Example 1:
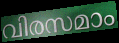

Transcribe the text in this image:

വിരസമാം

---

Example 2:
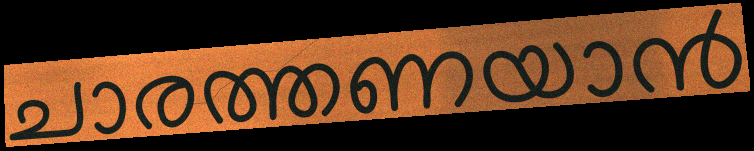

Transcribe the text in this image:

ചാരത്തണയാൻ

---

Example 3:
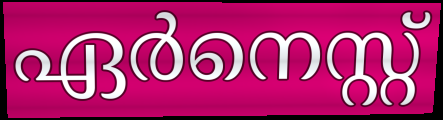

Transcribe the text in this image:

ഏർനെസ്റ്റ്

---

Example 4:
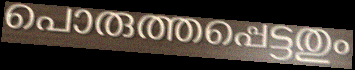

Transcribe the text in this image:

പൊരുത്തപ്പെട്ടതും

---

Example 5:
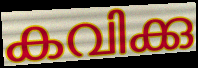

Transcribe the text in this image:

കവിക്കു